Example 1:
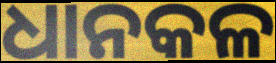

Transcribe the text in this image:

ଧାନକଳ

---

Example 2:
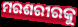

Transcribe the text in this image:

ମରଶରୀରକୁ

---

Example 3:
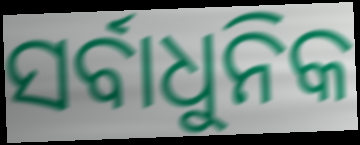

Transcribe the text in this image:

ସର୍ବାଧୁନିକ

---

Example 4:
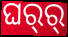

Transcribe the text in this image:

ଘର୍‍ର୍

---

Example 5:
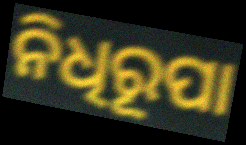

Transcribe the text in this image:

ନିଧିରୂପା